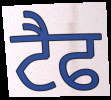
ਟੈਫ